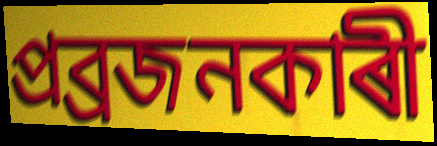
প্ৰব্ৰজনকাৰী